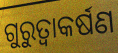
ଗୁରୁତ୍ଵାକର୍ଷଣ